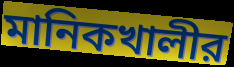
মানিকখালীর